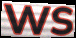
ws